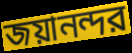
জয়ানন্দর